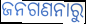
ଜନଗଣନାରୁ